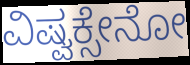
ವಿಷ್ವಕ್ಸೇನೋ